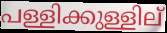
പള്ളിക്കുള്ളില്